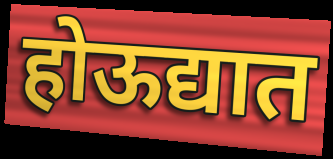
होऊद्यात